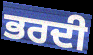
ਭਰਦੀ